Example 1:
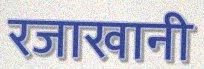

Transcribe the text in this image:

रजाखानी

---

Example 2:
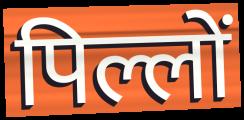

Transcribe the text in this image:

पिल्लों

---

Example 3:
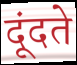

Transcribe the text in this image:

दूंदते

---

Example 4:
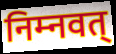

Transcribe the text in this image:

निम्नवत्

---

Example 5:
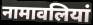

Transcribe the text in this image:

नामावलियां